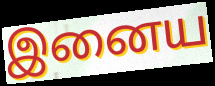
இனைய